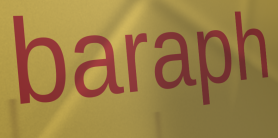
baraph